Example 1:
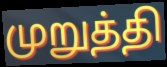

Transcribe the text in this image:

முறுத்தி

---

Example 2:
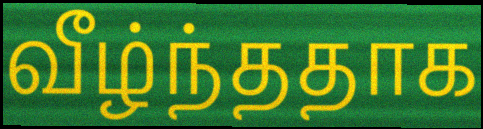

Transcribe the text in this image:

வீழ்ந்ததாக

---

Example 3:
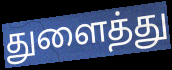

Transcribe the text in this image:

துளைத்து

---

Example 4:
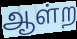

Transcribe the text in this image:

ஆள்ற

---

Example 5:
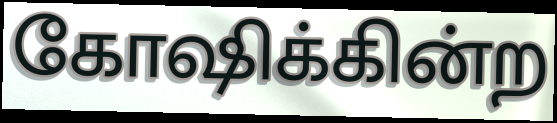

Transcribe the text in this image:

கோஷிக்கின்ற